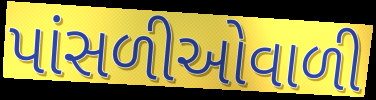
પાંસળીઓવાળી